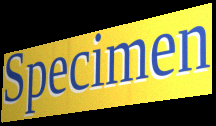
Specimen